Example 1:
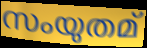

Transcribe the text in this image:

സംയുതമ്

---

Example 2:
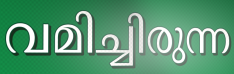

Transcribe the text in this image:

വമിച്ചിരുന്ന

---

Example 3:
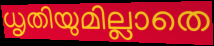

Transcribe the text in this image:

ധൃതിയുമില്ലാതെ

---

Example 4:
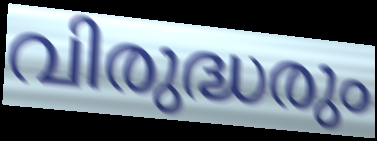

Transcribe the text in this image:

വിരുദ്ധരും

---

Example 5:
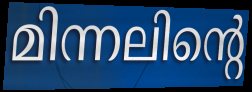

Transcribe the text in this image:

മിന്നലിന്റെ